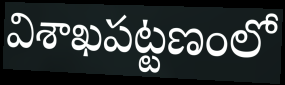
విశాఖపట్టణంలో